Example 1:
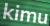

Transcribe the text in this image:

kimu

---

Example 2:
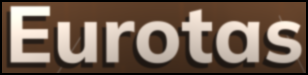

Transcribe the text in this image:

Eurotas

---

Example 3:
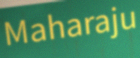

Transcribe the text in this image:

Maharaju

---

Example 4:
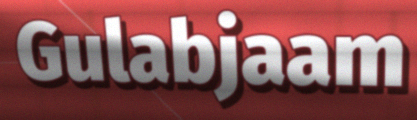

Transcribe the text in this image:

Gulabjaam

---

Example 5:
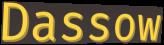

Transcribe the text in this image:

Dassow